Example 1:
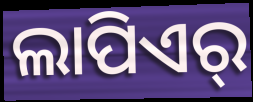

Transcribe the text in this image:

ଲାପିଏର୍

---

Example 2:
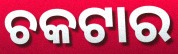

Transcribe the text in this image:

ଚକଟାର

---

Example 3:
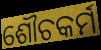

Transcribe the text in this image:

ଶୌଚକର୍ମ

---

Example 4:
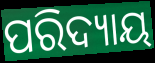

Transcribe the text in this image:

ପରିଦ୍ୟାୟ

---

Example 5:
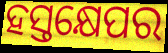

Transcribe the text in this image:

ହସ୍ତକ୍ଷେପର